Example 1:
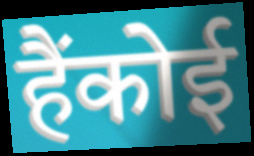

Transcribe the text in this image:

हैंकोई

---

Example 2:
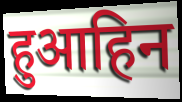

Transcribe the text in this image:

हुआहिन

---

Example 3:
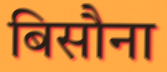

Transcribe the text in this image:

बिसौना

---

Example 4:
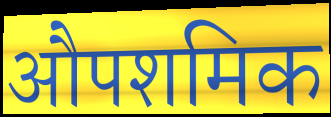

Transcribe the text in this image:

औपशमिक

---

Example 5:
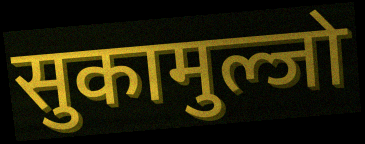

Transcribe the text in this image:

सुकामुल्जो